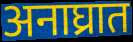
अनाघ्रात